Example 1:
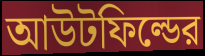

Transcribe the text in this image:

আউটফিল্ডের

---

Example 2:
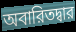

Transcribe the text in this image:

অবারিতদ্বার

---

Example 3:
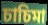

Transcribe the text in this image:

চাচিমা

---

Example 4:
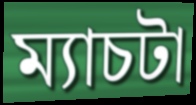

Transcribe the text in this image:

ম্যাচটা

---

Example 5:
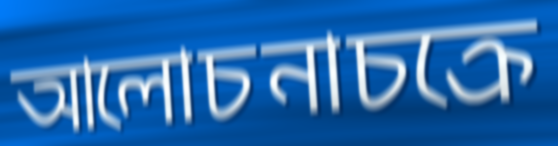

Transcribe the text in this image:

আলোচনাচক্রে